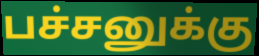
பச்சனுக்கு